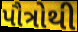
પૌત્રોથી